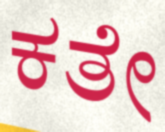
ಕತೇ